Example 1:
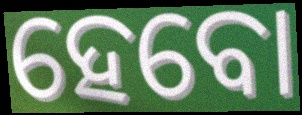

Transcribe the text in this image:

ହେବୋ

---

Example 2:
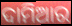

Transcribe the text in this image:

ଦାମିଆର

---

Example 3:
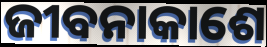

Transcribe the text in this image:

ଜୀବନାକାଶେ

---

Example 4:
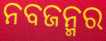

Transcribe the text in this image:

ନବଜନ୍ମର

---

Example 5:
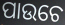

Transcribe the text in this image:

ପାଉଚେ